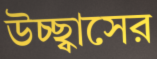
উচ্ছ্বাসের